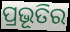
ପ୍ରଭୂତିର